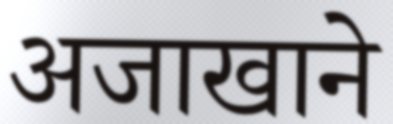
अजाखाने